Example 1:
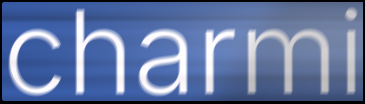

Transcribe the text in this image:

charmi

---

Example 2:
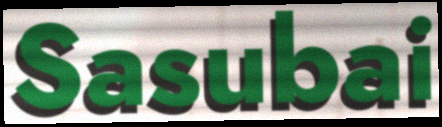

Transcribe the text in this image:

Sasubai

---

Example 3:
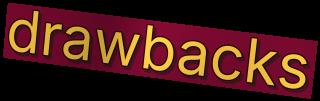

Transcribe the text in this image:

drawbacks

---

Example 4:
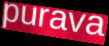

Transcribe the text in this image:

purava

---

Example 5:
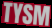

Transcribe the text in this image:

TYSM